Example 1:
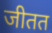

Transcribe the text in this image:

जीतत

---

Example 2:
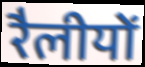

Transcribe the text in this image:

रैलीयों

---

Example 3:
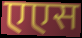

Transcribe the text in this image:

एएस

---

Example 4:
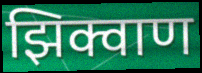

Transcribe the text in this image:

झिक्वाण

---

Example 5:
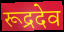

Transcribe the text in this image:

रूद्रदेव